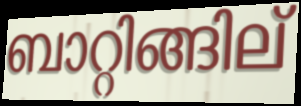
ബാറ്റിങ്ങില്